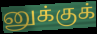
னுக்குக்